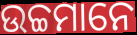
ଉଚ୍ଚମାନେ